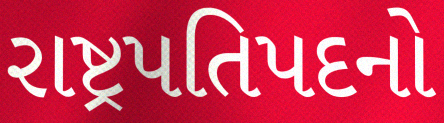
રાષ્ટ્રપતિપદનો